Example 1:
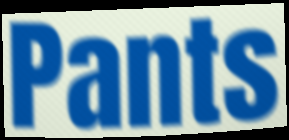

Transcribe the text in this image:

Pants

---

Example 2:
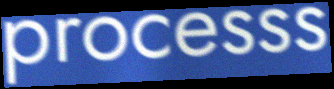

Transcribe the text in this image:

processs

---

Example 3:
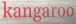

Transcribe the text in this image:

kangaroo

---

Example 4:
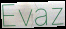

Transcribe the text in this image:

Evaz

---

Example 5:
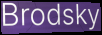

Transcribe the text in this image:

Brodsky